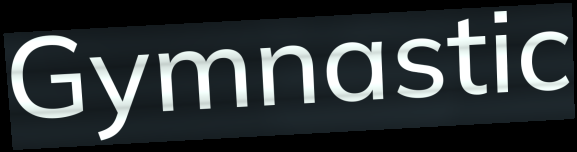
Gymnastic